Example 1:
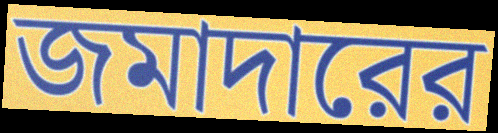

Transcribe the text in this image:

জমাদারের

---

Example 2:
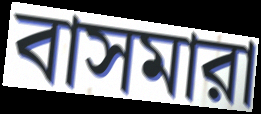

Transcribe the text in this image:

বাসমারা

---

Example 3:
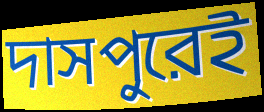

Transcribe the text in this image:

দাসপুরেই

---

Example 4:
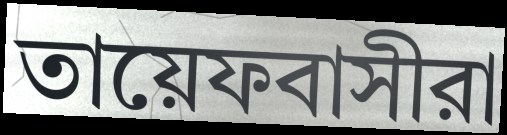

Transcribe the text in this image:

তায়েফবাসীরা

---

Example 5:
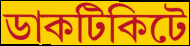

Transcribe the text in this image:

ডাকটিকিটে